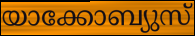
യാക്കോബ്യുസ്